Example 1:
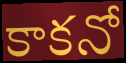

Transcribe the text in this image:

కాకనో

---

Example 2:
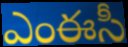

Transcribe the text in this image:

ఎంఈసీ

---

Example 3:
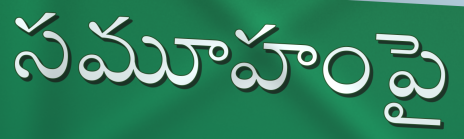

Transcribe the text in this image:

సమూహంపై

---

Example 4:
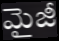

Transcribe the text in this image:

మైజీ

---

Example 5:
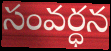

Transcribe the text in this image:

సంవర్ధన